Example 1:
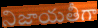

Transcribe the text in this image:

నిజాయతీగా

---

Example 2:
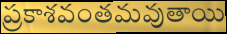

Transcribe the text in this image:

ప్రకాశవంతమవుతాయి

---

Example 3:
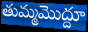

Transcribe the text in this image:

తుమ్మమొద్దూ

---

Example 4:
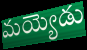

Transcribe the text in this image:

మయ్యెడు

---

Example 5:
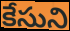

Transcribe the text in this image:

కేసుని